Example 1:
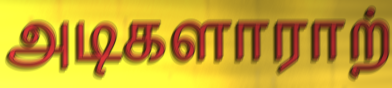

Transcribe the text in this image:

அடிகளாராற்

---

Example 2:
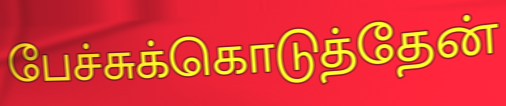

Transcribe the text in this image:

பேச்சுக்கொடுத்தேன்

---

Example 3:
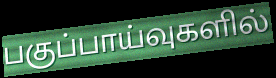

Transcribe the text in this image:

பகுப்பாய்வுகளில்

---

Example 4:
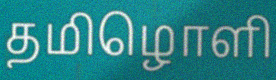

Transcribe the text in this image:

தமிழொளி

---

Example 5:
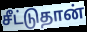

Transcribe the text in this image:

சீட்டுதான்